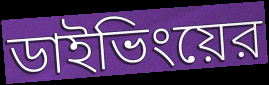
ডাইভিংয়ের